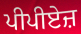
ਪੀਪੀਏਜ਼